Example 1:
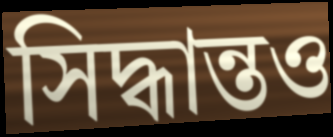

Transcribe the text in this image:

সিদ্ধান্তও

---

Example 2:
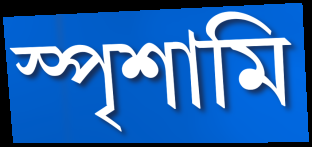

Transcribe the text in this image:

স্পৃশামি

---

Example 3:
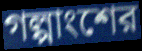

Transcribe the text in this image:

গল্পাংশের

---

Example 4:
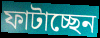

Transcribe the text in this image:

ফাটাচ্ছেন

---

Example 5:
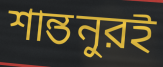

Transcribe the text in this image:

শান্তনুরই